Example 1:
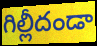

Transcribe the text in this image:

గిల్లీదండా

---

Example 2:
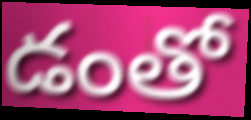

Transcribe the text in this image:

డంతో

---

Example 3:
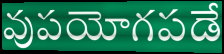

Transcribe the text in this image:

వుపయోగపడే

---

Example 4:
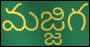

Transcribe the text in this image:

మజ్జిగ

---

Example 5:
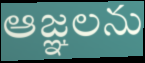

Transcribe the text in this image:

ఆజ్ఞలను